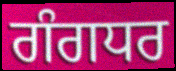
ਗੰਗਧਰ